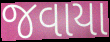
જવાયા